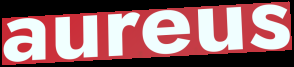
aureus